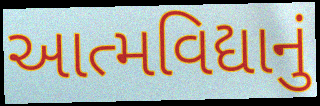
આત્મવિદ્યાનું